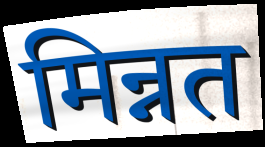
मिन्नत